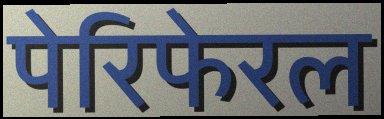
पेरिफेरल